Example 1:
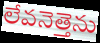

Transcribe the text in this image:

లేవనెత్తెను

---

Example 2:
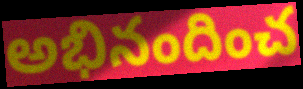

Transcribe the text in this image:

అభినందించ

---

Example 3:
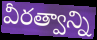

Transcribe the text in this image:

వీరత్వాన్ని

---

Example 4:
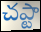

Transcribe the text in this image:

చఎ్టా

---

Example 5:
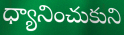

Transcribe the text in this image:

ధ్యానించుకుని